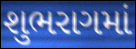
શુભરાગમાં